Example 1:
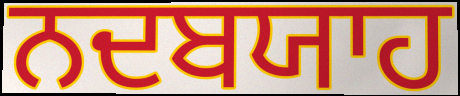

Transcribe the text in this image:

ਨਦਬਯਾਹ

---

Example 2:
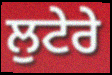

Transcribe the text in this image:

ਲੁਟੇਰੇ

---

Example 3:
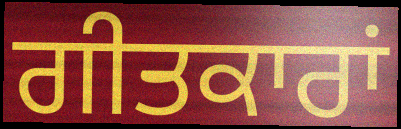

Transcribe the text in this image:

ਗੀਤਕਾਰਾਂ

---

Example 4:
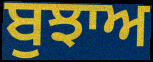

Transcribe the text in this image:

ਬੁਝਾਅ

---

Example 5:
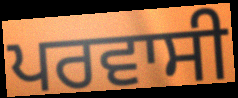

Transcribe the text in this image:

ਪਰਵਾਸੀ